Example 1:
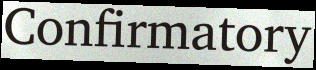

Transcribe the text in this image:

Confirmatory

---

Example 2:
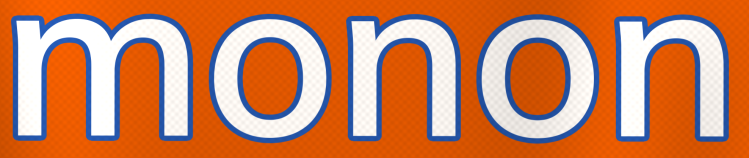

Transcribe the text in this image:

monon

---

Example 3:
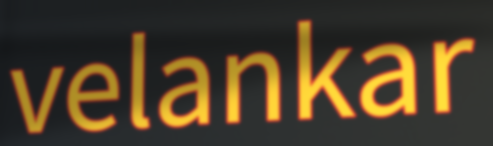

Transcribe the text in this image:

velankar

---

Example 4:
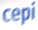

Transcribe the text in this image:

cepi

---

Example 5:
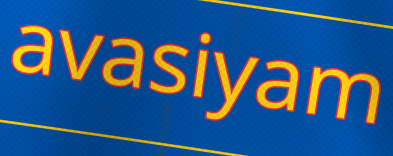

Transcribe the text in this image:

avasiyam